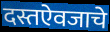
दस्तऐवजाचे